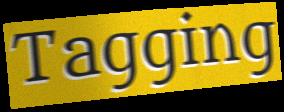
Tagging